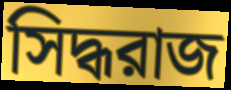
সিদ্ধরাজ